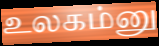
உலகம்னு